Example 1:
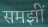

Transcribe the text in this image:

समझीं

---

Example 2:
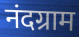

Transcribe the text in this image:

नंदग्राम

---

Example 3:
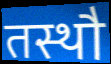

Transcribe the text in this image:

तस्थौ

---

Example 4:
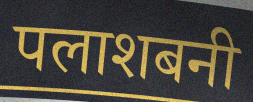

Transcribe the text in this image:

पलाशबनी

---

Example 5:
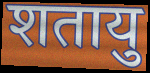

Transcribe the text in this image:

शतायु